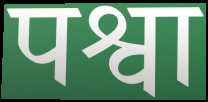
पश्वा